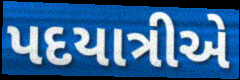
પદયાત્રીએ